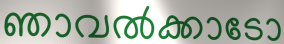
ഞാവൽക്കാടോ